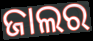
ଜାଲର